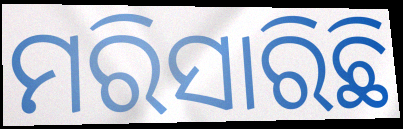
ମରିସାରିଛି